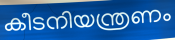
കീടനിയന്ത്രണം